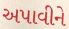
અપાવીને